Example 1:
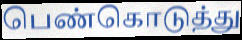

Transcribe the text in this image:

பெண்கொடுத்து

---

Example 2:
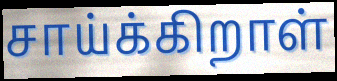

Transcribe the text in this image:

சாய்க்கிறாள்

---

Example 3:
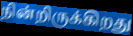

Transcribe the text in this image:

நின்றிருக்கிறது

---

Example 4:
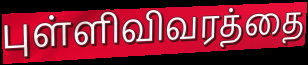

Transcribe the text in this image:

புள்ளிவிவரத்தை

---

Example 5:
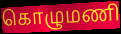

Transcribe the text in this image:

கொழுமணி